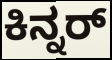
ಕಿನ್ನರ್